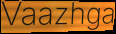
Vaazhga